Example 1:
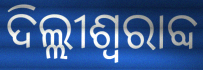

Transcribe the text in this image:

ଦିଲ୍ଲୀଶ୍ୱରାବ୍ଦ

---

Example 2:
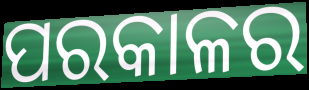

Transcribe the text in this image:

ପରକାଳର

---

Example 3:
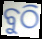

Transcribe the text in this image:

ବୁଠି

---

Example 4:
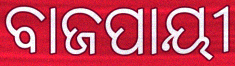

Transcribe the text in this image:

ବାଜପାୟୀ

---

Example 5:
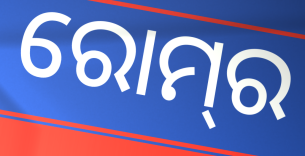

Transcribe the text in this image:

ରୋମ୍‌ର